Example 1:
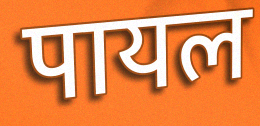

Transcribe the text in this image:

पायल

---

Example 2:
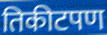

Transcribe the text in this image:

तिकीटपण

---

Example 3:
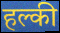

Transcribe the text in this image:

हल्की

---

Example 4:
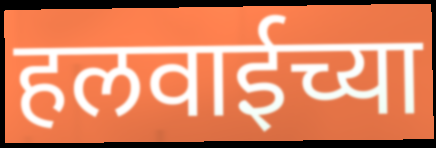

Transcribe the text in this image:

हलवाईच्या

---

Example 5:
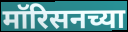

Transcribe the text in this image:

मॉरिसनच्या